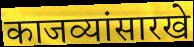
काजव्यांसारखे